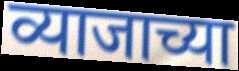
व्याजाच्या